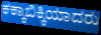
ಕಕ್ಕಾಬಿಕ್ಕಿಯಾದರು